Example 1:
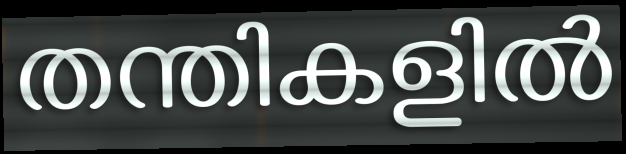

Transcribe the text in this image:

തന്തികളിൽ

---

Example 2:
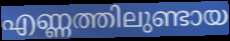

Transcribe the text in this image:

എണ്ണത്തിലുണ്ടായ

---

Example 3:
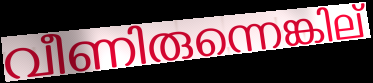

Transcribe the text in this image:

വീണിരുന്നെങ്കില്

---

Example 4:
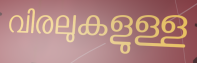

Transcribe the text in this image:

വിരലുകളുള്ള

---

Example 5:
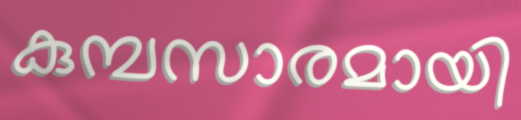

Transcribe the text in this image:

കുമ്പസാരമായി